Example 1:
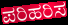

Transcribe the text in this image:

ಪರಿಹರಿಸ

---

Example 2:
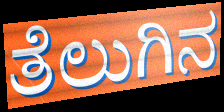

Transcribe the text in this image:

ತೆಲುಗಿನ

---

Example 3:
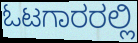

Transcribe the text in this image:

ಓಟಗಾರರಲ್ಲಿ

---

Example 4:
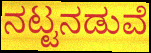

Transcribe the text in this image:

ನಟ್ಟನಡುವೆ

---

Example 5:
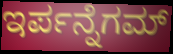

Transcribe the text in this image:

ಇರ್ಪನ್ನೆಗಮ್